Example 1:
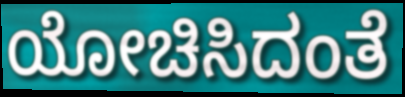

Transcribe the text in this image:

ಯೋಚಿಸಿದಂತೆ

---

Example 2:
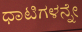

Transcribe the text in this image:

ಧಾಟಿಗಳನ್ನೇ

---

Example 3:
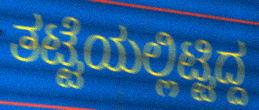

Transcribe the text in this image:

ತಟ್ಟೆಯಲ್ಲಿಟ್ಟಿದ್ದ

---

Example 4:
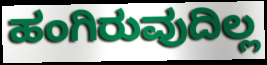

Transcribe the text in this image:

ಹಂಗಿರುವುದಿಲ್ಲ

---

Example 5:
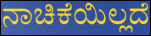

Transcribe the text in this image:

ನಾಚಿಕೆಯಿಲ್ಲದೆ